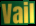
Vail